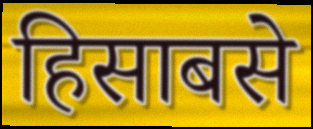
हिसाबसे